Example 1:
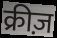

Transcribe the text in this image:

क्रीज़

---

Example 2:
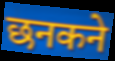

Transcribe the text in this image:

छनकने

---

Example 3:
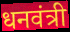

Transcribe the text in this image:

धनवंत्री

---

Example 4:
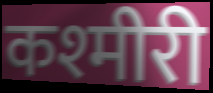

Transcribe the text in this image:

कश्‍मीरी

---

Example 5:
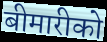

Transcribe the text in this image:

बीमारीको